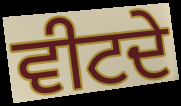
ਵੀਟਦੇ